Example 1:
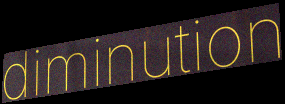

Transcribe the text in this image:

diminution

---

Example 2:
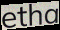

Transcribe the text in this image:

etha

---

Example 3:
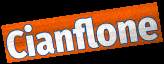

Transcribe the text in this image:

Cianflone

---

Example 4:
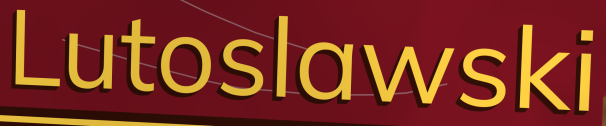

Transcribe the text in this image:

Lutoslawski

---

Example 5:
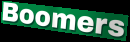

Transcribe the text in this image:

Boomers